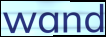
wand